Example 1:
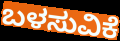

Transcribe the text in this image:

ಬಳಸುವಿಕೆ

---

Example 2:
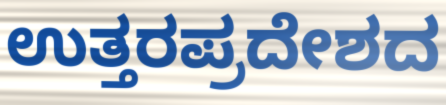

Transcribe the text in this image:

ಉತ್ತರಪ್ರದೇಶದ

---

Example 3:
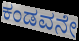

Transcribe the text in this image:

ಕಂಡವನೇ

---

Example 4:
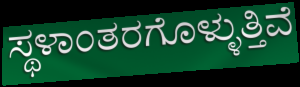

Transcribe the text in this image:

ಸ್ಥಳಾಂತರಗೊಳ್ಳುತ್ತಿವೆ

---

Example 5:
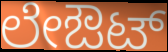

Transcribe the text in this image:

ಲೇಔಟ್